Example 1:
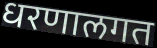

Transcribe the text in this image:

धरणालगत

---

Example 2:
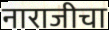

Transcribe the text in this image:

नाराजीचा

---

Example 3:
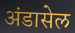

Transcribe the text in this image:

अंडासेल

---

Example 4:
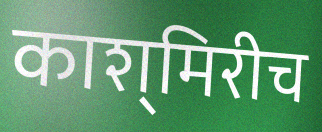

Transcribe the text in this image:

काश्मिरीच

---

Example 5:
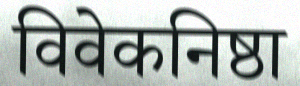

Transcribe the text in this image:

विवेकनिष्ठा